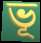
ভূ